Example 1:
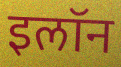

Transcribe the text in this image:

इलॉन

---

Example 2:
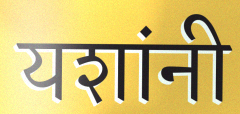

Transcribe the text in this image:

यशांनी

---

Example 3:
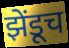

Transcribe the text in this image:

झेंडूच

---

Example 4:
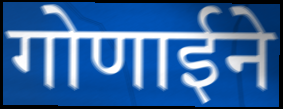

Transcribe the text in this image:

गोणाईने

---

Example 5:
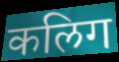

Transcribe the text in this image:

कलिग